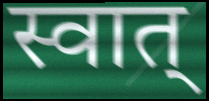
स्वात्